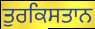
ਤੁਰਕਿਸਤਾਨ